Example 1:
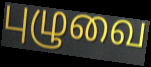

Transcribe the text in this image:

புழுவை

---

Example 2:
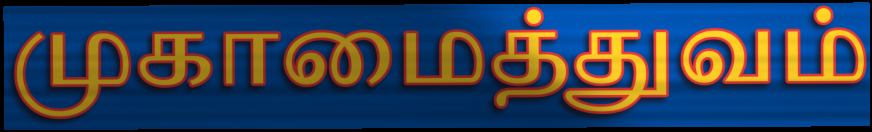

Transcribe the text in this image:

முகாமைத்துவம்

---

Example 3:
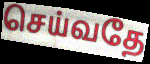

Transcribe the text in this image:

செய்வதே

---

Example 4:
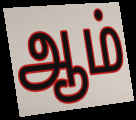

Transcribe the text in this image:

ஆம்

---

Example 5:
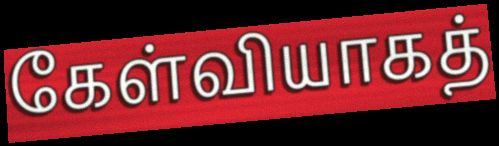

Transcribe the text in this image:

கேள்வியாகத்